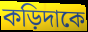
কড়িদাকে